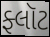
ફ્લૉટ